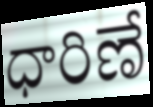
ధారిణే